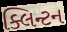
ક્લિન્ટન